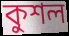
কুশল